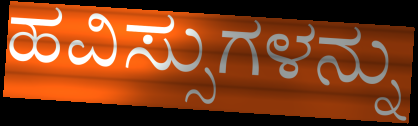
ಹವಿಸ್ಸುಗಳನ್ನು